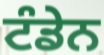
ਟੰਡੇਨ